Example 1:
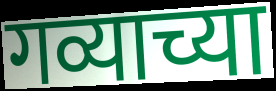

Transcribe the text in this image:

गव्याच्या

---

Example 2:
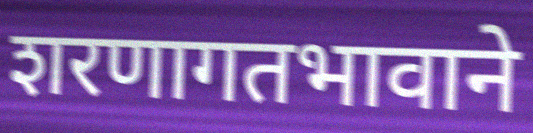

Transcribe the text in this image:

शरणागतभावाने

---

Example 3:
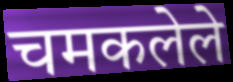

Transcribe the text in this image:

चमकलेले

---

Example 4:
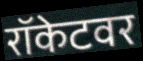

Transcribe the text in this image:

रॉकेटवर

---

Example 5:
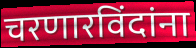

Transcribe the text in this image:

चरणारविंदांना